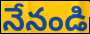
నేనండి